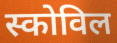
स्कोविल